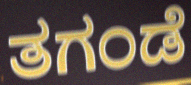
ತಗಂಡೆ